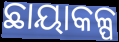
ଛାୟାକଳ୍ପ